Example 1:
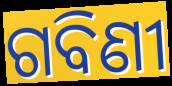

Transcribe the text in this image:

ଗବିଣୀ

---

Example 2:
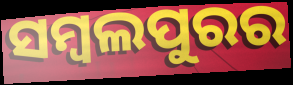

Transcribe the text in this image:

ସମ୍ୱଲପୁରର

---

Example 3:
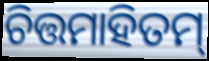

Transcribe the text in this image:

ଚିତ୍ତମାହିତମ୍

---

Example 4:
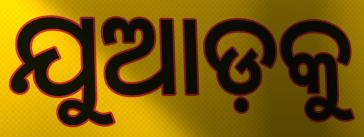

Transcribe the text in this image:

ଯୁଆଡ଼କୁ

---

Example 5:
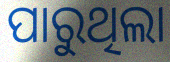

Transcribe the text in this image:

ପାରୁଥିଲା